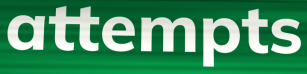
attempts